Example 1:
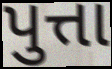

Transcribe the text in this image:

પુત્તા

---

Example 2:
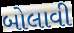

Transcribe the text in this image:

બોલાવી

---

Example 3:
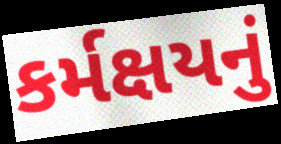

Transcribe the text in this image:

કર્મક્ષયનું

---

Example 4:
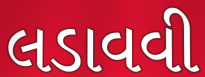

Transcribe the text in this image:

લડાવવી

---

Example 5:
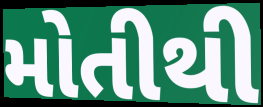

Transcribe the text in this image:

મોતીથી